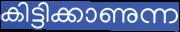
കിട്ടിക്കാണുന്ന